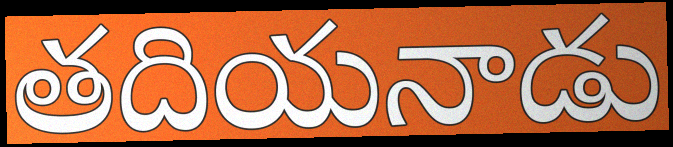
తదియనాడు